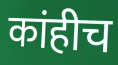
कांहीच